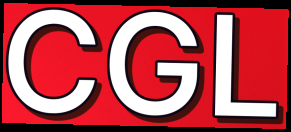
CGL